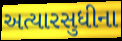
અત્યારસુધીના